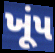
ખૂંપ